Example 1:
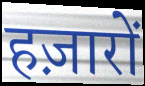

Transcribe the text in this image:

हज़ारों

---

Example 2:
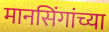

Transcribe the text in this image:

मानसिंगांच्या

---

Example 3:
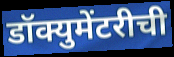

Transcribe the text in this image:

डॉक्युमेंटरीची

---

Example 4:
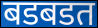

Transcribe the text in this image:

बडबडत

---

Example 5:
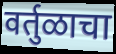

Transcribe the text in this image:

वर्तुळाचा